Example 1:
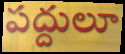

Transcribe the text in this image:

పద్దులూ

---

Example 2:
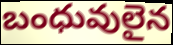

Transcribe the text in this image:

బంధువులైన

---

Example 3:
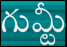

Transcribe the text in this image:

గుమ్టీ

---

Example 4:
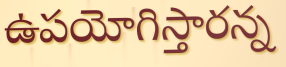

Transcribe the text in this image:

ఉపయోగిస్తారన్న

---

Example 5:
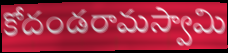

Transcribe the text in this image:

కోదండరామస్వామి